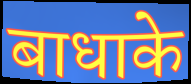
बाधाके